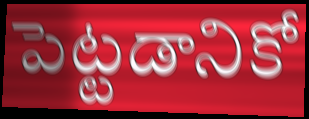
పెట్టడానికో